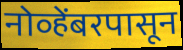
नोव्हेंबरपासून